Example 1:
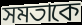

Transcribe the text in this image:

সমতাকে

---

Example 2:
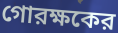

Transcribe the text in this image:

গোরক্ষকের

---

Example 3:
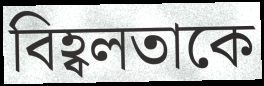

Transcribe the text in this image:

বিহ্বলতাকে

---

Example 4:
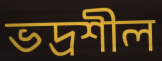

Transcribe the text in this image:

ভদ্রশীল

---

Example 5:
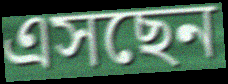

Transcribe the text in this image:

এসছেন